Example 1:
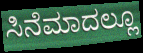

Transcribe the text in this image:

ಸಿನೆಮಾದಲ್ಲೂ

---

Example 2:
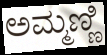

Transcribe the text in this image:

ಅಮ್ಮಣ್ಣಿ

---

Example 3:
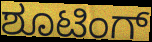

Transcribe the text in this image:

ಶೂಟಿಂಗ್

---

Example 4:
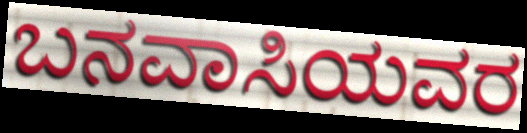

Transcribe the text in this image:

ಬನವಾಸಿಯವರ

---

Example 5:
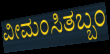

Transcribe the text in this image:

ವೀಮಂಸಿತಬ್ಬಂ